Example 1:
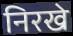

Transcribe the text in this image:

निरखे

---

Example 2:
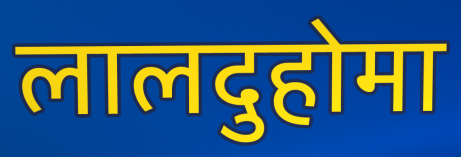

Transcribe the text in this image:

लालदुहोमा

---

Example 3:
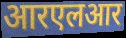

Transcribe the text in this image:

आरएलआर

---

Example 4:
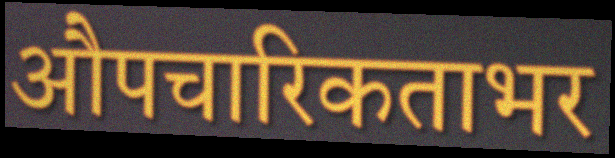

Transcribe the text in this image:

औपचारिकताभर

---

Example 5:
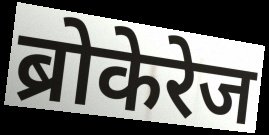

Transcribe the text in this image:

ब्रोकेरेज